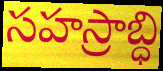
సహస్రాబ్ధి